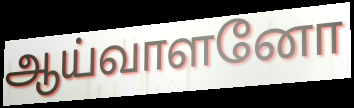
ஆய்வாளனோ